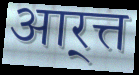
आर्त्त